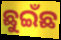
ଛୁଇଁଛ